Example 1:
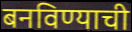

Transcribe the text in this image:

बनविण्याची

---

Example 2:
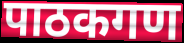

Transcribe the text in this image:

पाठकगण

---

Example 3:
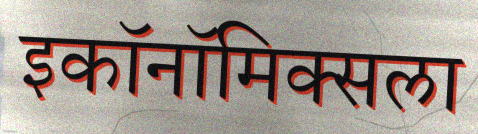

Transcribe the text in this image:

इकॉनॉमिक्सला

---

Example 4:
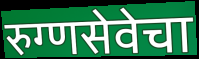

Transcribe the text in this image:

रुग्णसेवेचा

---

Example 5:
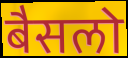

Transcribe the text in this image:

बैसलो